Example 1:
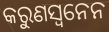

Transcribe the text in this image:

କରୁଣସ୍ଵନେନ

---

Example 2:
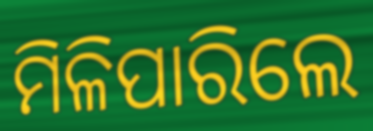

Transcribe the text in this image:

ମିଳିପାରିଲେ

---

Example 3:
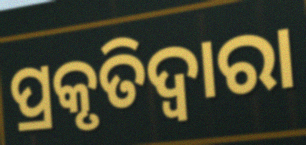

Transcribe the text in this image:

ପ୍ରକୃତିଦ୍ୱାରା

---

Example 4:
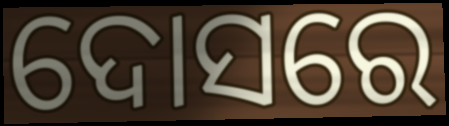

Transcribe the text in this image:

ଦୋସରେ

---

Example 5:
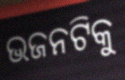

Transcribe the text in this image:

ଭଜନଟିକୁ